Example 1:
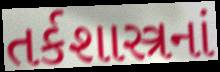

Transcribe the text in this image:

તર્કશાસ્ત્રનાં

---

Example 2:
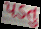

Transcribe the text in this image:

પડતુ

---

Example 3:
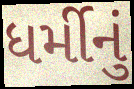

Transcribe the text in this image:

ધર્મીનું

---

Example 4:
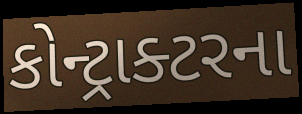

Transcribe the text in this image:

કોન્ટ્રાક્ટરના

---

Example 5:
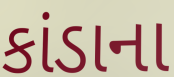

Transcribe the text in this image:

કાંડાના